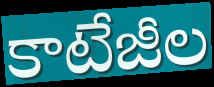
కాటేజీల